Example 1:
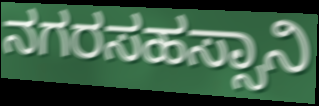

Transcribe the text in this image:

ನಗರಸಹಸ್ಸಾನಿ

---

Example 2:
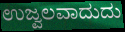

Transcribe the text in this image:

ಉಜ್ವಲವಾದುದು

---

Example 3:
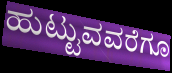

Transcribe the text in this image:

ಹುಟ್ಟುವವರೆಗೂ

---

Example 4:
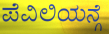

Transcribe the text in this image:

ಪೆವಿಲಿಯನ್ಗೆ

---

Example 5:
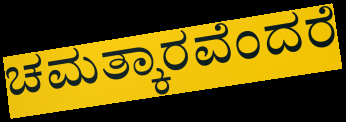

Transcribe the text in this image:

ಚಮತ್ಕಾರವೆಂದರೆ